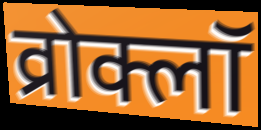
व्रोक्लॉ